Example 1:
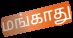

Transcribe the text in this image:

மங்காது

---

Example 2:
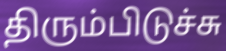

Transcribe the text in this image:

திரும்பிடுச்சு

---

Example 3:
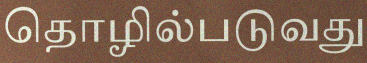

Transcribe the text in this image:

தொழில்படுவது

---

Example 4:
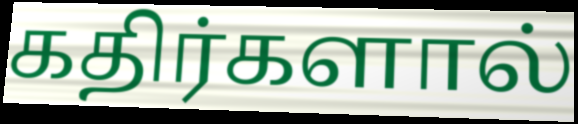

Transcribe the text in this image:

கதிர்களால்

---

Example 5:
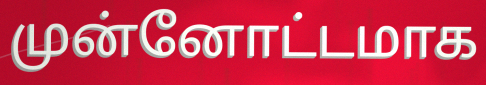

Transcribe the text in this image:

முன்னோட்டமாக